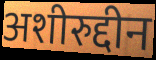
अशीरुद्दीन